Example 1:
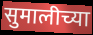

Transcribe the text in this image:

सुमालीच्या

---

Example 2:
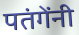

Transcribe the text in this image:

पतंगेंनी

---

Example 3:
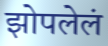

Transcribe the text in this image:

झोपलेलं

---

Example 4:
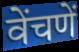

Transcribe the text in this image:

वेंचणें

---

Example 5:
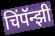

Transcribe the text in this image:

चिंपॅन्झी